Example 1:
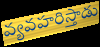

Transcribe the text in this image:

వ్యవహరిస్తాడు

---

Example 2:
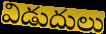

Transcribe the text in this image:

విడుదులు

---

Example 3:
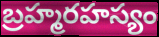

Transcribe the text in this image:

బ్రహ్మరహస్యం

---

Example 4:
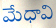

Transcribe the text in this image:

మేధావి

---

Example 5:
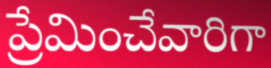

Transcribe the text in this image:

ప్రేమించేవారిగా